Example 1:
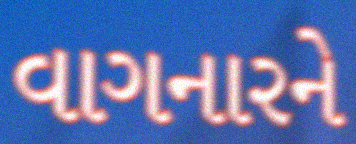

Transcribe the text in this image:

વાગનારને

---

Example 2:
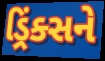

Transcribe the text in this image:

ડ્રિંક્સને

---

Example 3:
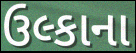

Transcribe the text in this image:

ઉલ્કાના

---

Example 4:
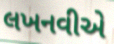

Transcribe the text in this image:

લખનવીએ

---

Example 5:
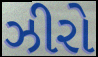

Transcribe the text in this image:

ઝીરો